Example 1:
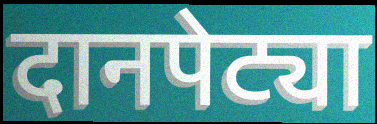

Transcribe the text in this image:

दानपेट्या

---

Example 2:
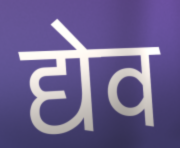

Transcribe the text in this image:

द्येव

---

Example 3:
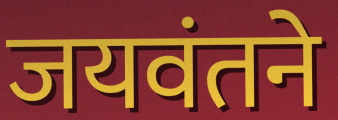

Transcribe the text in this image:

जयवंतने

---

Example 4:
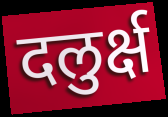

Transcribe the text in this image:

दलुर्क्ष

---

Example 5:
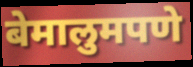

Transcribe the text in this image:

बेमालुमपणे